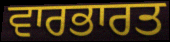
ਵਾਰਭਾਰਤ